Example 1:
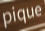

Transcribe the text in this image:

pique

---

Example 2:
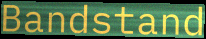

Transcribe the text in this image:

Bandstand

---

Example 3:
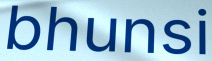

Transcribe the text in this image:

bhunsi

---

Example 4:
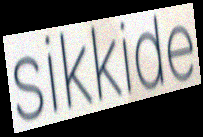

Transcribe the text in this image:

sikkide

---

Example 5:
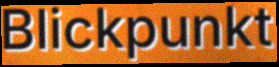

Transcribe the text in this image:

Blickpunkt